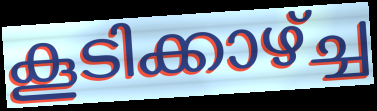
കൂടിക്കാഴ്ച്ച